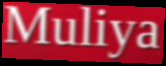
Muliya